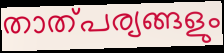
താത്പര്യങ്ങളും